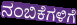
ನಂಬಿಕೆಗಳಿಗೆ